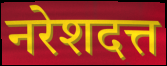
नरेशदत्त